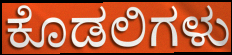
ಕೊಡಲಿಗಳು